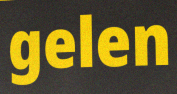
gelen